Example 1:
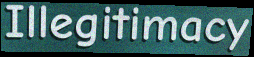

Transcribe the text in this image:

Illegitimacy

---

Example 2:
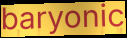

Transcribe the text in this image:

baryonic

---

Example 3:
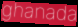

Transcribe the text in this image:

ghanada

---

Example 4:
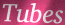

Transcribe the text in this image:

Tubes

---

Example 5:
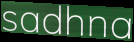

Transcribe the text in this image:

sadhna